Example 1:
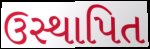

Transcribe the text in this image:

ઉસ્થાપિત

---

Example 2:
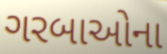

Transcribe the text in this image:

ગરબાઓના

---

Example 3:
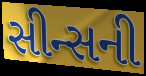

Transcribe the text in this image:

સીન્સની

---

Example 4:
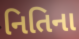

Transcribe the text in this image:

નિતિના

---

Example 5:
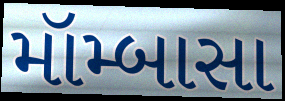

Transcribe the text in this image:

મૉમ્બાસા